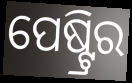
ପେଷ୍ଟ୍ରିର